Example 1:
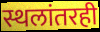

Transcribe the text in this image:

स्थलांतरही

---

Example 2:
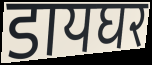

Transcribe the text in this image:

डायघर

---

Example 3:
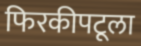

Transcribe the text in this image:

फिरकीपटूला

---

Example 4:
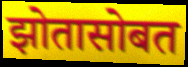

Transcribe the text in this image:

झोतासोबत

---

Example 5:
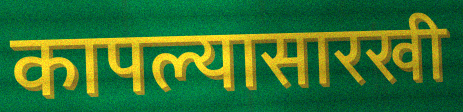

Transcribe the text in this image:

कापल्यासारखी